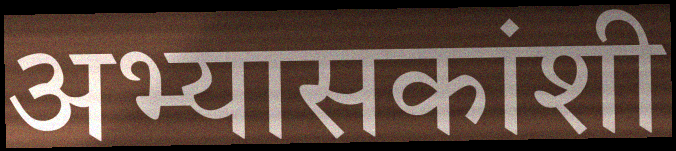
अभ्यासकांशी